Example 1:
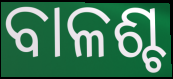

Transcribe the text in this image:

ବାଳଶ୍ଚ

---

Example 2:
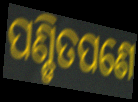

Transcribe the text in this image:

ପଣ୍ଡିତପଣେ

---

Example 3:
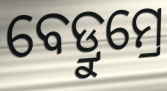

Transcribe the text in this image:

ବେଡ୍ରୁମ୍ରେ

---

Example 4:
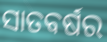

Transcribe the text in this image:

ସାତବର୍ଷର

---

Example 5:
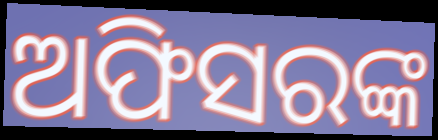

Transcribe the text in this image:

ଅଫିସରଙ୍କ